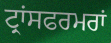
ਟ੍ਰਾਂਸਫਰਮਰਾਂ